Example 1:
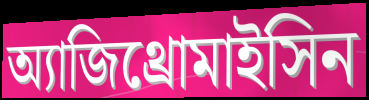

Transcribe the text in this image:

অ্যাজিথ্রোমাইসিন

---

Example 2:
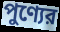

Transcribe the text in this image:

পুণ্যের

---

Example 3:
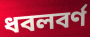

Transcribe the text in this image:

ধবলবর্ণ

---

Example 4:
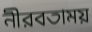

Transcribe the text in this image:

নীরবতাময়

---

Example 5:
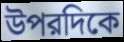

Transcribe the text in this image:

উপরদিকে